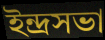
ইন্দ্রসভা